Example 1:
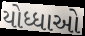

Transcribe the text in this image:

યોધ્ધાઓ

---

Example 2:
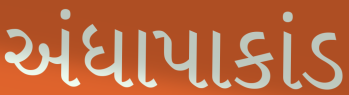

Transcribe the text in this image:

અંધાપાકાંડ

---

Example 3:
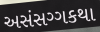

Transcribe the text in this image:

અસંસગ્ગકથા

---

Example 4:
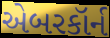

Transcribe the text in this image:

એબરકૉર્ન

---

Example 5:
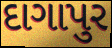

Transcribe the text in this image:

દાગાપુર